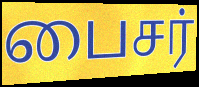
பைசர்